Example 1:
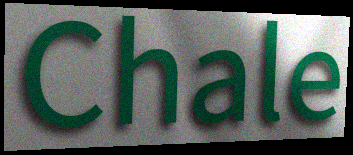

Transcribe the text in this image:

Chale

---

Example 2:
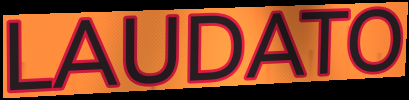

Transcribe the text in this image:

LAUDATO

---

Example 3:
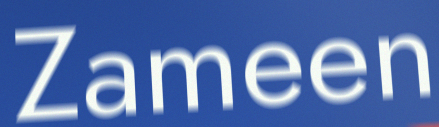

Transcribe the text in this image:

Zameen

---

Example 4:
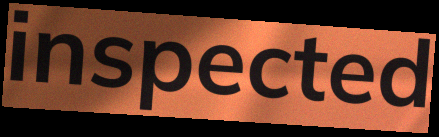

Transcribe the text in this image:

inspected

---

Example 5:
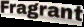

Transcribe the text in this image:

Fragrant